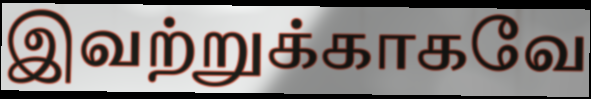
இவற்றுக்காகவே